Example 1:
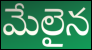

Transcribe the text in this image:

మేలైన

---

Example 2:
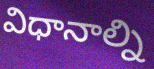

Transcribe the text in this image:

విధానాల్ని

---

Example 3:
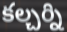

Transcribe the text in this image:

కల్చర్ని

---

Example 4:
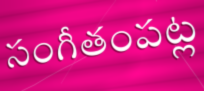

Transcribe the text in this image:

సంగీతంపట్ల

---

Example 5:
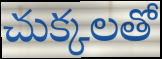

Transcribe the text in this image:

చుక్కలతో